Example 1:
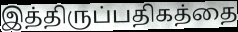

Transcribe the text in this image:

இத்திருப்பதிகத்தை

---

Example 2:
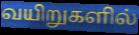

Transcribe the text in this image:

வயிறுகளில்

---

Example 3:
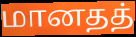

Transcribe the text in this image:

மானதத்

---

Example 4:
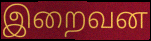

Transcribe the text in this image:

இறைவன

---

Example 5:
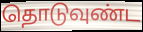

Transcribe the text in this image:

தொடுவுண்ட